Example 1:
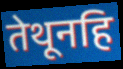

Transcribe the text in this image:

तेथूनहि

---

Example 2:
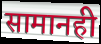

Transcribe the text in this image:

सामानही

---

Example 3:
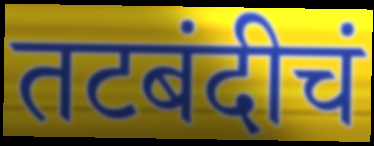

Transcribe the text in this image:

तटबंदीचं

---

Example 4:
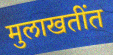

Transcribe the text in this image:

मुलाखतींत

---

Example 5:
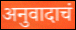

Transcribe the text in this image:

अनुवादाचं